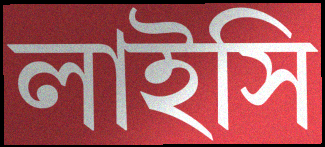
লাইসি